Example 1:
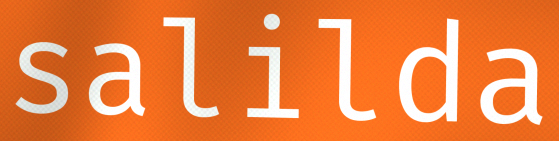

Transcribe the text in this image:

salilda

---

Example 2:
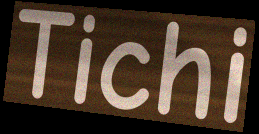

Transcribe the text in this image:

Tichi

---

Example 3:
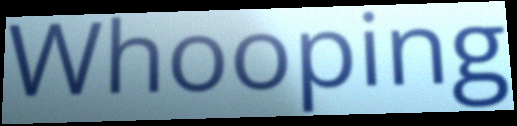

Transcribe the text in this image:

Whooping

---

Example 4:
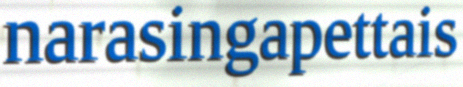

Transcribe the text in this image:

narasingapettais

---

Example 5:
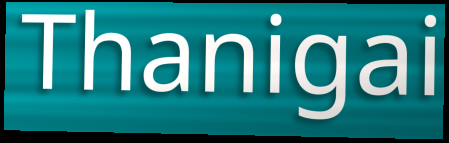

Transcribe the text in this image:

Thanigai